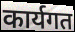
कार्यगत